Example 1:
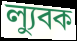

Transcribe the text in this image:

ল্যুবক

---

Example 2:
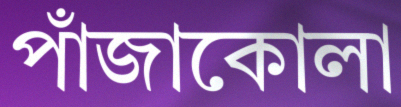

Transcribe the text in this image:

পাঁজাকোলা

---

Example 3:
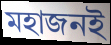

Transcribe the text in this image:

মহাজনই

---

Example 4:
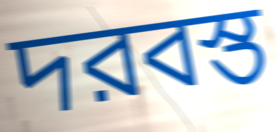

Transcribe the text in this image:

দরবস্ত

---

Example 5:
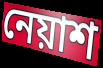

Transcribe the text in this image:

নেয়াশ